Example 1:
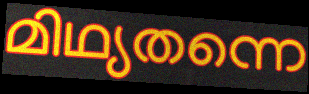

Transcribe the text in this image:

മിഥ്യതന്നെ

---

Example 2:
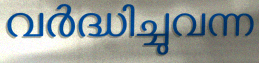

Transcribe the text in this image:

വർദ്ധിച്ചുവന്ന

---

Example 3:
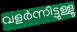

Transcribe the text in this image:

വളർന്നിട്ടുള്ളൂ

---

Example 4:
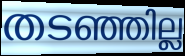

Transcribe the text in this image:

തടഞ്ഞില്ല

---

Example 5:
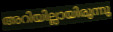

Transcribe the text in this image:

അറിയില്ലായിരുന്നു